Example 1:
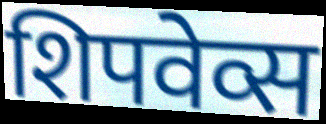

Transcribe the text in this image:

शिपवेव्स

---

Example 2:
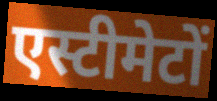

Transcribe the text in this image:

एस्टीमेटों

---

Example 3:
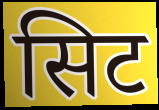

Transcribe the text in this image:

सिट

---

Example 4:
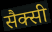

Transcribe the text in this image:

सैक्सी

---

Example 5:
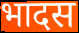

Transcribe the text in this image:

भादस